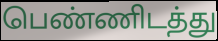
பெண்ணிடத்து